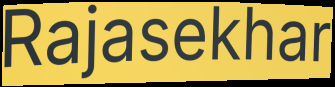
Rajasekhar